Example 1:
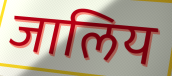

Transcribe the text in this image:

जालिय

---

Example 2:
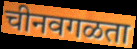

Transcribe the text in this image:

चीनवगळता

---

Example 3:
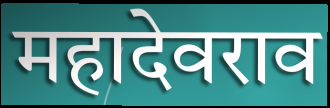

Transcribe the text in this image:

महादेवराव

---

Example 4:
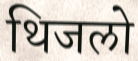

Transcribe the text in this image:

थिजलो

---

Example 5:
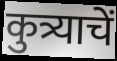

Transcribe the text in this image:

कुत्र्याचें